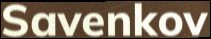
Savenkov